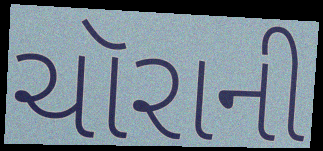
ચૉરાની